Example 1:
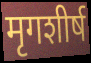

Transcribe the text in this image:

मृगशीर्ष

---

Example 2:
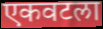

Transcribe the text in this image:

एकवटला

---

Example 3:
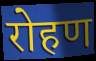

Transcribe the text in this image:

रोहण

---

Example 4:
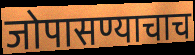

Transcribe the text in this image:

जोपासण्याचाच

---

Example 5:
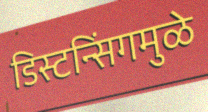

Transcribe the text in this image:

डिस्टन्सिंगमुळे